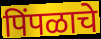
पिंपळाचे